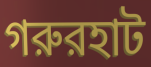
গরুরহাট